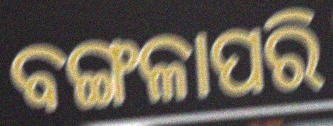
ବଙ୍ଗଳାପରି